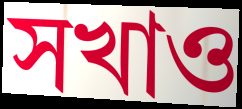
সখাও